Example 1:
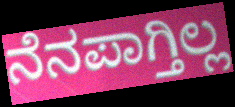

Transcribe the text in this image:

ನೆನಪಾಗ್ತಿಲ್ಲ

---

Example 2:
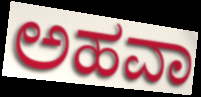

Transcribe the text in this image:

ಅಹವಾ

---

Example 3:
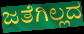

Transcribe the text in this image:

ಜತೆಗಿಲ್ಲದ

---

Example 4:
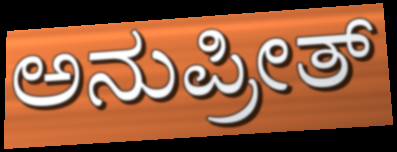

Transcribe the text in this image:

ಅನುಪ್ರೀತ್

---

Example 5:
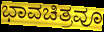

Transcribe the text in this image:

ಭಾವಚಿತ್ರವೂ